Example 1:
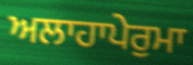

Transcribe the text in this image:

ਅਲਾਹਾਪੇਰੁਮਾ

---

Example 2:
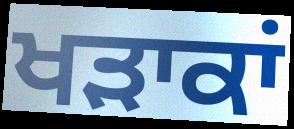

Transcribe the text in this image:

ਖੜਾਕਾਂ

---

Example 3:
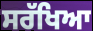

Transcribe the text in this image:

ਸਰੱਖਿਆ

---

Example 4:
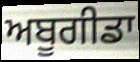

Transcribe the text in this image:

ਅਬੂਗੀਡਾ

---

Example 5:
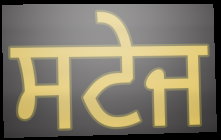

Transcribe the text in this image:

ਸਟੇਜ